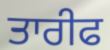
ਤਾਰੀਫ